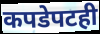
कपडेपटही